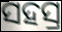
ସହସ୍ର